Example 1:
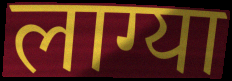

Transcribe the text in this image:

लाग्या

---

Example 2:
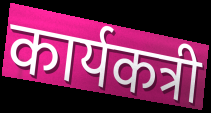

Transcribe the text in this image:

कार्यकत्री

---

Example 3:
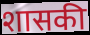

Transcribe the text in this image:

शासकी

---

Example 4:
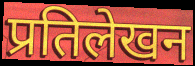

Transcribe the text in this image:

प्रतिलेखन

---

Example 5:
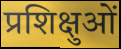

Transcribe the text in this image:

प्रशिक्षुओं